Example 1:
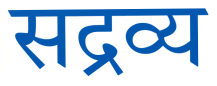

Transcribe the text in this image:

सद्रव्य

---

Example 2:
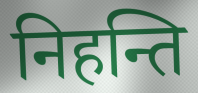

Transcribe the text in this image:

निहन्ति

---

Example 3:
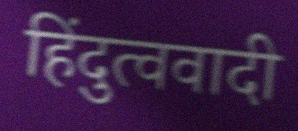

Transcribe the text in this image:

हिंदुत्ववादी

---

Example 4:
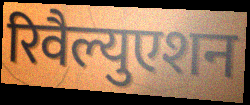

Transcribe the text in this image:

रिवैल्युएशन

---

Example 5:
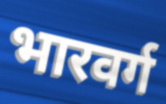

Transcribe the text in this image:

भारवर्ग